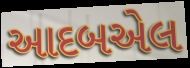
આદબએલ